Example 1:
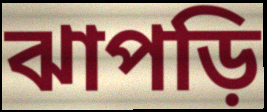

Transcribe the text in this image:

ঝাপড়ি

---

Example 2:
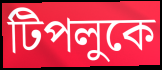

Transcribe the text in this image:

টিপলুকে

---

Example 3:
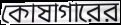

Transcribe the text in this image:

কোষাগারের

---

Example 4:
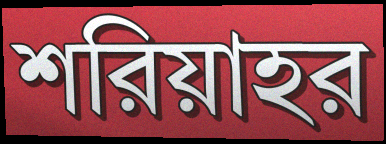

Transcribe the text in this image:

শরিয়াহর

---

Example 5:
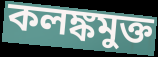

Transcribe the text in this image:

কলঙ্কমুক্ত